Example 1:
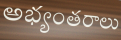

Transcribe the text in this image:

అభ్యంతరాలు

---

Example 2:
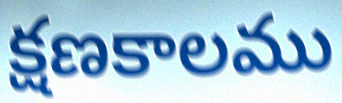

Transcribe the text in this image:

క్షణకాలము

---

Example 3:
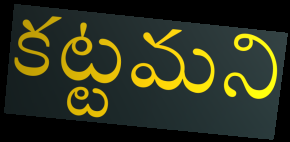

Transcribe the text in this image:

కట్టమని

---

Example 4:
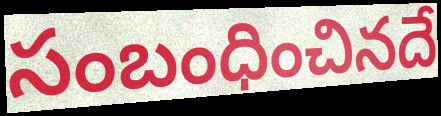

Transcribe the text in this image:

సంబంధించినదే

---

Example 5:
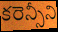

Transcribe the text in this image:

కరెన్సీని